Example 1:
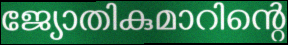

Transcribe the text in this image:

ജ്യോതികുമാറിന്റെ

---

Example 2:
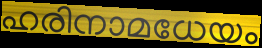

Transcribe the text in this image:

ഹരിനാമധേയം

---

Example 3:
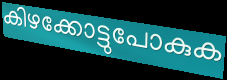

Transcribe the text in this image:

കിഴക്കോട്ടുപോകുക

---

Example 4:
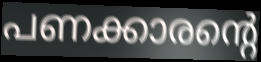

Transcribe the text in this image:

പണക്കാരന്റെ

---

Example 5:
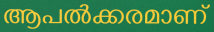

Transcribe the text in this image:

ആപൽക്കരമാണ്